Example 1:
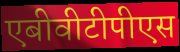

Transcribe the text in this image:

एबीवीटीपीएस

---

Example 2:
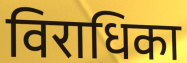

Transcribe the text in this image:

विराधिका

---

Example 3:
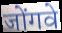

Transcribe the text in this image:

जोंगवे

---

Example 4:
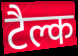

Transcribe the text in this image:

टैल्क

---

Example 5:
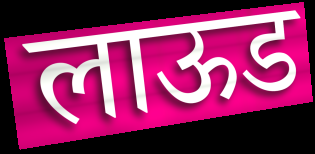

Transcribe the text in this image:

लाऊड